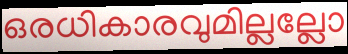
ഒരധികാരവുമില്ലല്ലോ